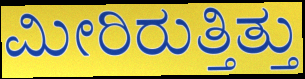
ಮೀರಿರುತ್ತಿತ್ತು